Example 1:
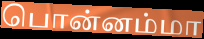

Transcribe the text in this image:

பொன்னம்மா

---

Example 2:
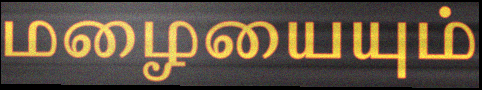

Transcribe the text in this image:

மழையையும்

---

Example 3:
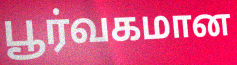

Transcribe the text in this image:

பூர்வகமான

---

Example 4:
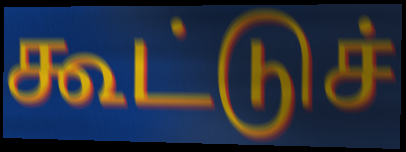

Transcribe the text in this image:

கூட்டுச்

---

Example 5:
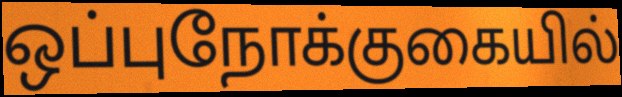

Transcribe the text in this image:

ஒப்புநோக்குகையில்